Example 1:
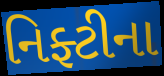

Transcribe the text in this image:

નિફ્ટીના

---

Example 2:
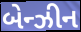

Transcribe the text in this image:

બેન્ઝીન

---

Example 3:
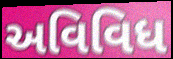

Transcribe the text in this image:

અવિવિધ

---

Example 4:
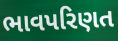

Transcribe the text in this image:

ભાવપરિણત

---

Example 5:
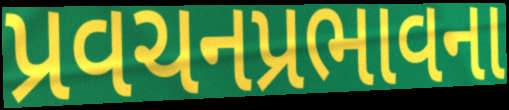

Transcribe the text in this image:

પ્રવચનપ્રભાવના